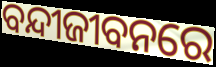
ବନ୍ଦୀଜୀବନରେ